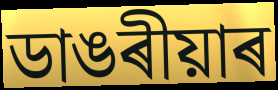
ডাঙৰীয়াৰ